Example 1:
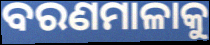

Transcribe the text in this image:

ବରଣମାଳାକୁ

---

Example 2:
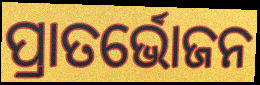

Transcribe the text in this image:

ପ୍ରାତର୍ଭୋଜନ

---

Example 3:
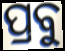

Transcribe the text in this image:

ପ୍ରବୁ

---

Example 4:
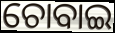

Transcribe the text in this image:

ଚୋବାଇ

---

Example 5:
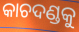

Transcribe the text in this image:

କାଚଦଣ୍ଡକୁ